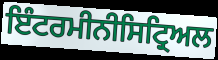
ਇੰਟਰਮੀਨੀਸਿਟ੍ਰਿਅਲ